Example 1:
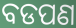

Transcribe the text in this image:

ବଡପଣ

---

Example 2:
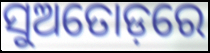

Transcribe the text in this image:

ସୁଅତୋଡ଼ରେ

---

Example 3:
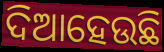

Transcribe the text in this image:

ଦିଆହେଉଛି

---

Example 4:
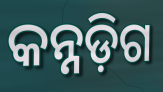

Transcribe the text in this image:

କନ୍ନଡ଼ିଗ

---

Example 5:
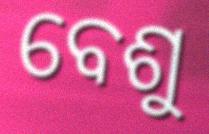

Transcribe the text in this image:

ବେଶୁ